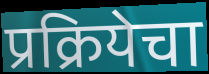
प्रक्रियेचा